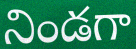
నిండగా